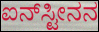
ಐನ್‌ಸ್ಟೀನನ